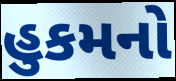
હુકમનો